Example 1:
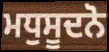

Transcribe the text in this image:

ਮਧੁਸੂਦਨੋ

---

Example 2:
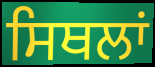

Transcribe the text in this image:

ਸਿਥਲਾਂ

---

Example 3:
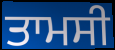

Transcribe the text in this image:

ਤਾਮਸੀ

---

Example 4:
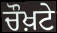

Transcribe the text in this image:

ਚੌਖ਼ਟੇ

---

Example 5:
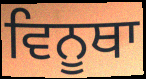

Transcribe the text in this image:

ਵਿਨੂਥਾ